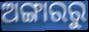
ଅଙ୍ଗାରରୁ